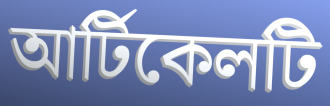
আর্টিকেলটি